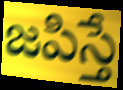
జపిస్తే